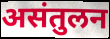
असंतुलन